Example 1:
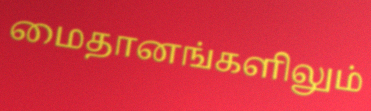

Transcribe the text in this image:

மைதானங்களிலும்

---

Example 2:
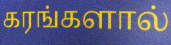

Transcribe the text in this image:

கரங்களால்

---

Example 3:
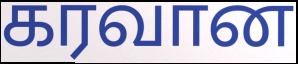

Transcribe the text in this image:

கரவான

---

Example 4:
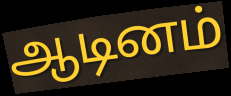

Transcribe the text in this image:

ஆடினம்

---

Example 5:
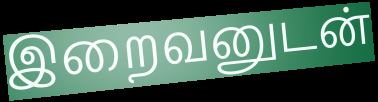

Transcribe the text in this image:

இறைவனுடன்